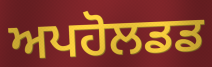
ਅਪਹੋਲਡਡ